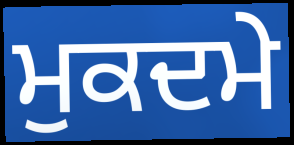
ਮੁਕਦਮੇ